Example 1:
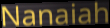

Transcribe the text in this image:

Nanaiah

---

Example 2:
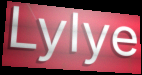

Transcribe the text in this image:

Lylye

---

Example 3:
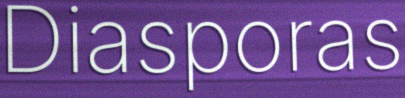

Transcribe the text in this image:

Diasporas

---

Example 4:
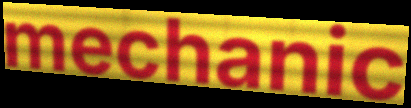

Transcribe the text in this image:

mechanic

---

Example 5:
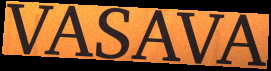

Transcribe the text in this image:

VASAVA